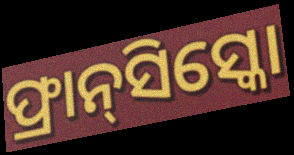
ଫ୍ରାନ୍‌ସିସ୍କୋ